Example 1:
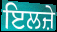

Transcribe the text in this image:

ਇਲਜ਼ੇ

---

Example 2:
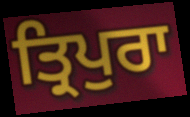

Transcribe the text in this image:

ਤ੍ਰਿਪੁਰਾ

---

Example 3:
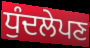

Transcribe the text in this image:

ਧੁੰਦਲੇਪਣ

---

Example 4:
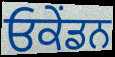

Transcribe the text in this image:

ਓਕੇਂਡਨ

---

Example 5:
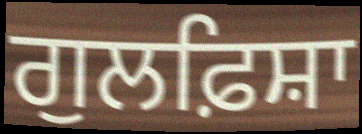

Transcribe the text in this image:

ਗੁਲਫ਼ਿਸ਼ਾ